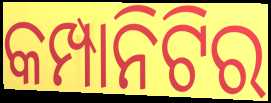
କମ୍ପାନିଟିର